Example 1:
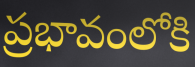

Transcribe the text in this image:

ప్రభావంలోకి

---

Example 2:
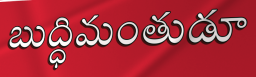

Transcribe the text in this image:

బుద్ధిమంతుడూ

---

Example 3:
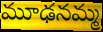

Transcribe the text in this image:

మూఢనమ్మ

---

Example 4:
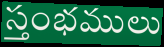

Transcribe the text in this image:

స్తంభములు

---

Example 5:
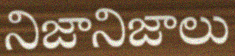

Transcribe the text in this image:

నిజానిజాలు